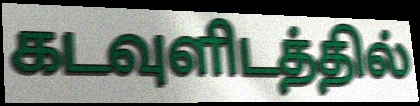
கடவுளிடத்தில்